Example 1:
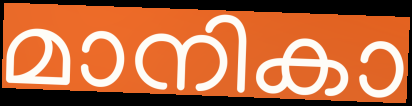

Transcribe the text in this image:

മാനികാ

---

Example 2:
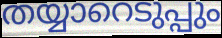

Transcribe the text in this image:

തയ്യാറെടുപ്പും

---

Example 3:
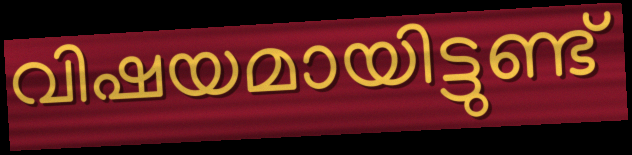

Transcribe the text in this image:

വിഷയമായിട്ടുണ്ട്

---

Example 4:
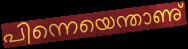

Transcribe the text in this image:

പിന്നെയെന്താണു്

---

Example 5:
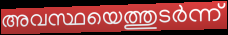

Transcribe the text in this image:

അവസ്ഥയെത്തുടർന്ന്